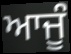
ਆਜੂੰ